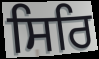
ਸਿਰਿ